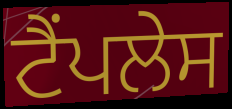
ਟੈਂਪਲੇਸ